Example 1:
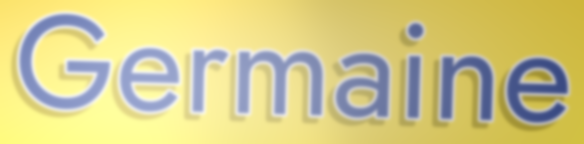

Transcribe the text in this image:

Germaine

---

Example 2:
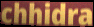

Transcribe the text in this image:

chhidra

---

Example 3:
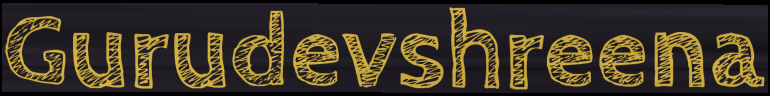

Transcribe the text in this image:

Gurudevshreena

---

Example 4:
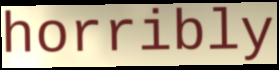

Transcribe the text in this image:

horribly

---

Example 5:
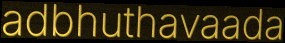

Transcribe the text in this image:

adbhuthavaada